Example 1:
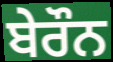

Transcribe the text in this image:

ਬੇਰੌਨ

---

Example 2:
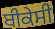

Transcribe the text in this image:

ਬੀਕੇਸੀ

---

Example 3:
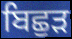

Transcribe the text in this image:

ਬਿਛੁੜ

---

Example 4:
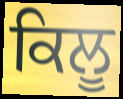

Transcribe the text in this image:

ਕਿਲੂ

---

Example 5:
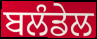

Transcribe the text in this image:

ਬਲੰਡੇਲ